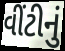
વીંટીનું